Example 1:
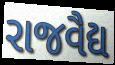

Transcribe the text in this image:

રાજવૈદ્ય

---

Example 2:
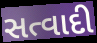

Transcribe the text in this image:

સત્વાદી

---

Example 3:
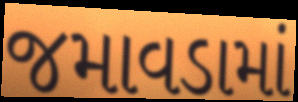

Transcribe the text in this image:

જમાવડામાં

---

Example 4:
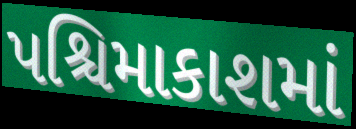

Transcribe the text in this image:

પશ્ચિમાકાશમાં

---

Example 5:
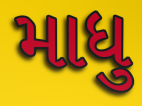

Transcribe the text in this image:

માધુ